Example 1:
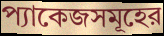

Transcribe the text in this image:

প্যাকেজসমূহের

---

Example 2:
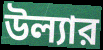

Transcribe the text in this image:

উল্যার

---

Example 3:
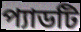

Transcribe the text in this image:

প্যাডটি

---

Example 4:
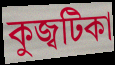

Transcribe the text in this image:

কুজ্বটিকা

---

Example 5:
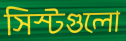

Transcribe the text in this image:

সিস্টগুলো